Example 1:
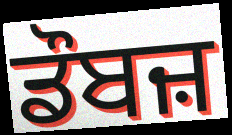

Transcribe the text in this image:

ਡੌਬਜ਼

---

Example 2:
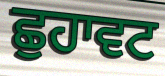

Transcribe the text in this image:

ਛੁਹਾਵਟ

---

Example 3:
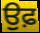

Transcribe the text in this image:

ਉਫ਼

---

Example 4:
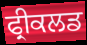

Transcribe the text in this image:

ਫ੍ਰੀਕਲਡ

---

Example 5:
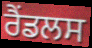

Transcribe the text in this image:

ਰੈਂਡਲਸ